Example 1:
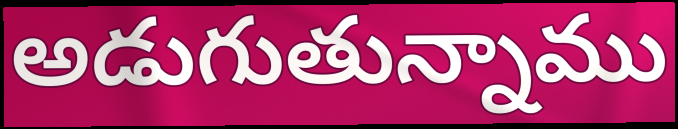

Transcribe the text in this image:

అడుగుతున్నాము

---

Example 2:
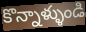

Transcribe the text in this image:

కొన్నాళ్ళుండి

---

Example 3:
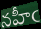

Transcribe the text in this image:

నహీఁ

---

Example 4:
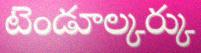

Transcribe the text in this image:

టెండూల్కర్కు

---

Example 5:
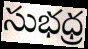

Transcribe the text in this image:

సుభధ్ర